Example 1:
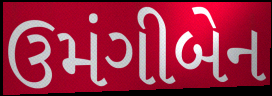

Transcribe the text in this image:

ઉમંગીબેન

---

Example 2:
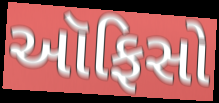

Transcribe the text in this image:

ઑફિસો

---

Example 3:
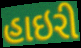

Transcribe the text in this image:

હાઇરી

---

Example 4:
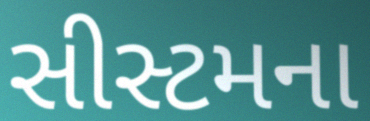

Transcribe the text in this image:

સીસ્ટમના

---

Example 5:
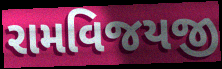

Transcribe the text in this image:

રામવિજયજી